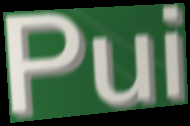
Pui